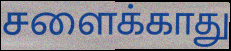
சளைக்காது